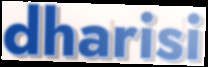
dharisi